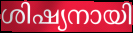
ശിഷ്യനായി